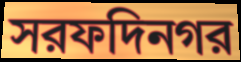
সরফদিনগর